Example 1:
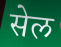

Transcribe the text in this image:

सेल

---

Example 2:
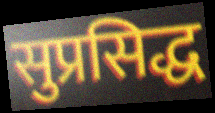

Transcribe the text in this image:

सुप्रसिद्ध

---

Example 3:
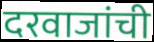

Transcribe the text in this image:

दरवाजांची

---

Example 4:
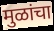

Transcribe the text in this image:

मुळांचा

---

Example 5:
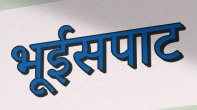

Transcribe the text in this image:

भूईसपाट